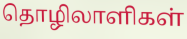
தொழிலாளிகள்